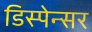
डिस्पेन्सर